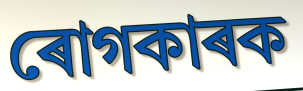
ৰোগকাৰক